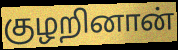
குழறினான்